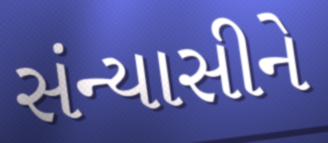
સંન્યાસીને